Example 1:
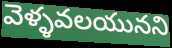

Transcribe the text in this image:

వెళ్ళవలయునని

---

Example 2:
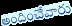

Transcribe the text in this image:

అందించేవారు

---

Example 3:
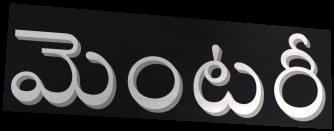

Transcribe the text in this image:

మెంటరీ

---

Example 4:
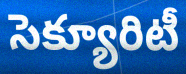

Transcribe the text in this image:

సెక్యూరిటీ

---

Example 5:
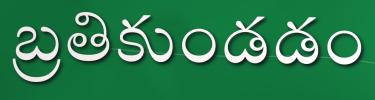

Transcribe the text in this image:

బ్రతికుండడం